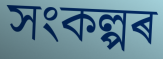
সংকল্পৰ